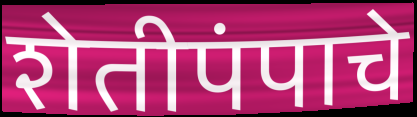
शेतीपंपाचे